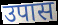
उपास